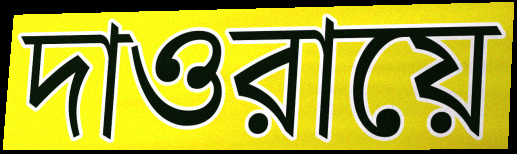
দাওরায়ে